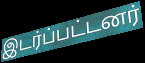
இடர்ப்பட்டனர்